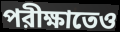
পরীক্ষাতেও